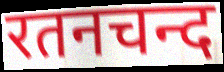
रतनचन्द